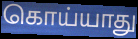
கொய்யாது